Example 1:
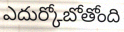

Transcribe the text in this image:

ఎదుర్కోబోతోంది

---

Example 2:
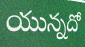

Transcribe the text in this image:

యున్నదో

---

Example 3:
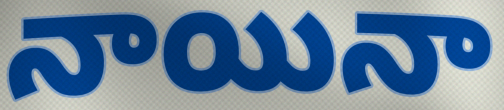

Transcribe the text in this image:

నాయినా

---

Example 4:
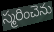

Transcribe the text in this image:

స్మరించెను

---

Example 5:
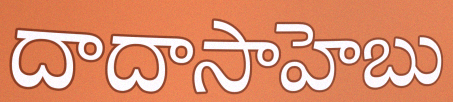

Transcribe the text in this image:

దాదాసాహెబు